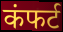
कंफर्ट